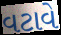
વટાવે